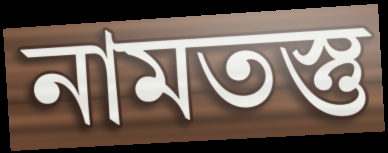
নামতস্তু